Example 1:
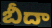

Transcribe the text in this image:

బీదా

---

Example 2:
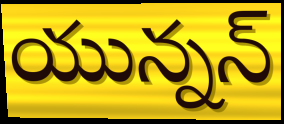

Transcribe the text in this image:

యున్నన్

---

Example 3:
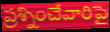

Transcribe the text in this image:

ప్రశ్నించేవారిపై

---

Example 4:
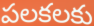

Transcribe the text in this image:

పలకలకు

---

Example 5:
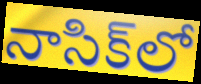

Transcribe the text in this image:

నాసిక్‌లో